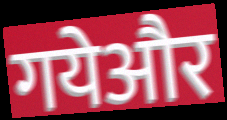
गयेऔर